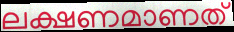
ലക്ഷണമാണത്